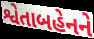
શ્વેતાબહેનને